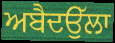
ਅਬੈਦਉੱਲਾ